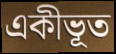
একীভূত